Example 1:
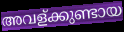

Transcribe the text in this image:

അവള്ക്കുണ്ടായ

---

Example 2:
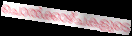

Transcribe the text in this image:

ചൊൽക്കാഴ്ചകളുടെ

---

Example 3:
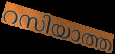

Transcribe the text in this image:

റസിയാത്ത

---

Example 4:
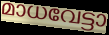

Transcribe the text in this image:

മാധവേട്ടാ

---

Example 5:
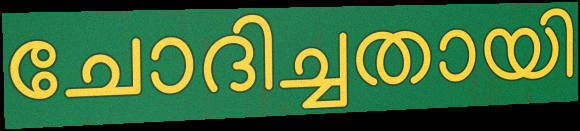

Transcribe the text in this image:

ചോദിച്ചതായി